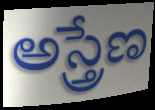
అస్త్రేణ